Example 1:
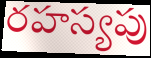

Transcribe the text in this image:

రహస్యపు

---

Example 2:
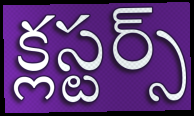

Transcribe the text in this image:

క్లస్టర్స్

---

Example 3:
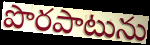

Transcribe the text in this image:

పొరపాటును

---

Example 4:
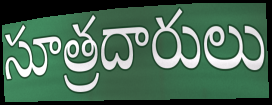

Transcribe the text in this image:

సూత్రదారులు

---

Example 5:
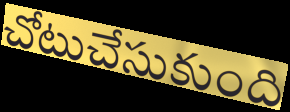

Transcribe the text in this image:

చోటుచేసుకుంది